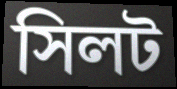
সিলট